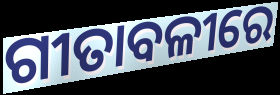
ଗୀତାବଳୀରେ